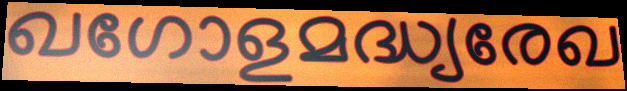
ഖഗോളമദ്ധ്യരേഖ